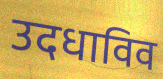
उदधाविव